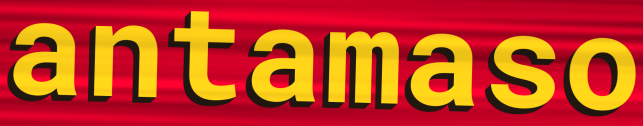
antamaso